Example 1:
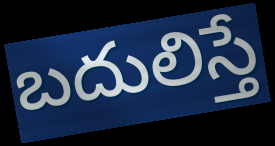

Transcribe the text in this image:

బదులిస్తే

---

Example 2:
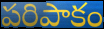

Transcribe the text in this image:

పరిపాకం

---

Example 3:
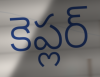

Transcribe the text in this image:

కెప్లర్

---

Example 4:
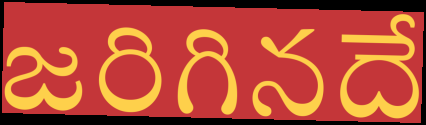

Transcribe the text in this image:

జరిగినదే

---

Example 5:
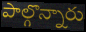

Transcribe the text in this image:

పాల్గొన్నారు